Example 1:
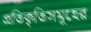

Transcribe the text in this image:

প্রতিকৃতিসমূহের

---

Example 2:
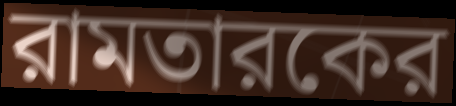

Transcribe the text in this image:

রামতারকের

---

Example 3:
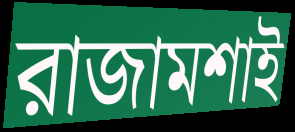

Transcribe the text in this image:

রাজামশাই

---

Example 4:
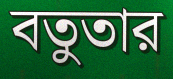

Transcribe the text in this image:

বতুতার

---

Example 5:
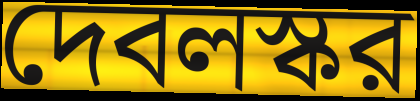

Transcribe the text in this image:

দেবলস্কর